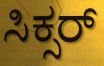
ಸಿಕ್ಸರ್